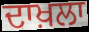
ਦਾਖ਼ਲਾ